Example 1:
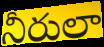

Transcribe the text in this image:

నీరులా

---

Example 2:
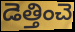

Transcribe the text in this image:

డెత్తించె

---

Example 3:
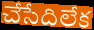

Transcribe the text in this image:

చేసేదిలేక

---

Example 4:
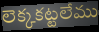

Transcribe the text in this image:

లెక్కకట్టలేము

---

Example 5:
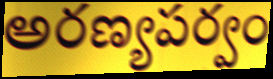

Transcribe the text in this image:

అరణ్యపర్వం